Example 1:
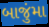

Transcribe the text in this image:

બાજુંમા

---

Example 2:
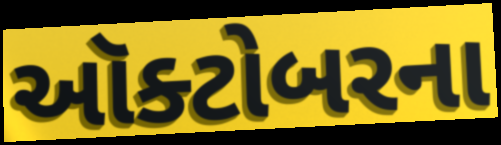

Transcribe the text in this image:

ઑક્ટોબરના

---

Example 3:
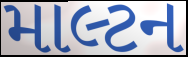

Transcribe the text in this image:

માલ્ટન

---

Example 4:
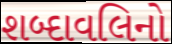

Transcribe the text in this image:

શબ્દાવલિનો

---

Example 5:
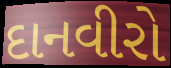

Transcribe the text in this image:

દાનવીરો